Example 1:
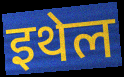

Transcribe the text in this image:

इथेल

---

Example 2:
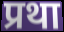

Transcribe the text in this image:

प्रथा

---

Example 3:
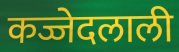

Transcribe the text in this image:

कज्जेदलाली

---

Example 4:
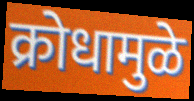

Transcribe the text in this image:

क्रोधामुळे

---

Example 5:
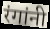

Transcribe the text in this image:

रंगांनी